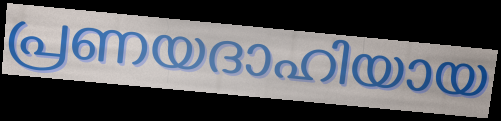
പ്രണയദാഹിയായ